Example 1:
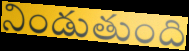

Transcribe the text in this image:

నిండుతుంది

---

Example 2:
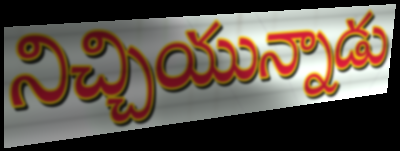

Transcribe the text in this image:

నిచ్చియున్నాడు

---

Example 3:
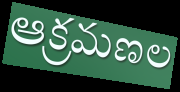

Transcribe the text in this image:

ఆక్రమణల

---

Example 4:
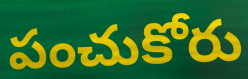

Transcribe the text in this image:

పంచుకోరు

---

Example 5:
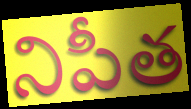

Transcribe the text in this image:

నిపీత